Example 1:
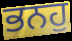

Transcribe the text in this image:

ਭਨਹੁ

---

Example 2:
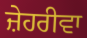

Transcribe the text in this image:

ਜ਼ੇਹਰੀਵਾ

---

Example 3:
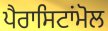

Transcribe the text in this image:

ਪੈਰਾਸਿਟਾਂਮੋਲ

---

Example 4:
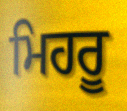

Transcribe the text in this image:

ਮਿਹਰੂ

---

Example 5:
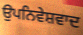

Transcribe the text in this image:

ਉਪਨਿਵੇਸ਼ਵਾਦ